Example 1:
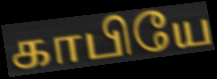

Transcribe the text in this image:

காபியே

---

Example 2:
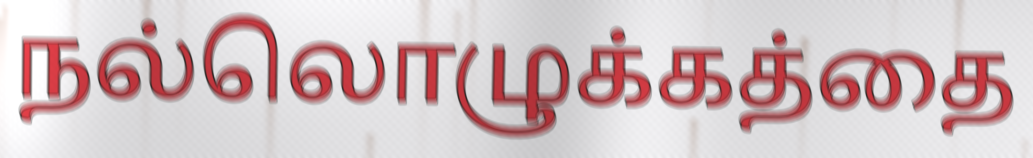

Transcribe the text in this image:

நல்லொழுக்கத்தை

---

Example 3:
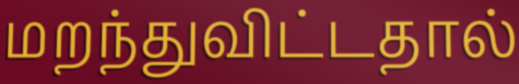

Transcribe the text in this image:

மறந்துவிட்டதால்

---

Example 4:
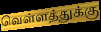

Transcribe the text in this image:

வெள்ளத்துக்கு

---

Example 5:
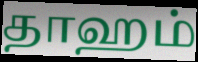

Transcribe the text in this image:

தாஹம்